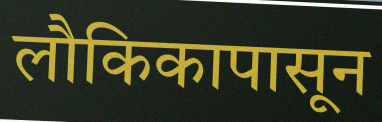
लौकिकापासून